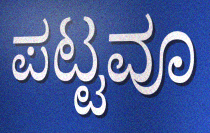
ಪಟ್ಟವೂ